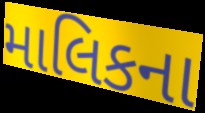
માલિકના